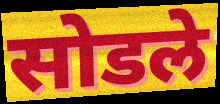
सोडले